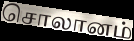
சொலானம்